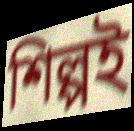
শিল্পই